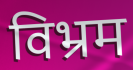
विभ्रम